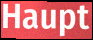
Haupt